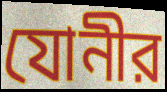
যোনীর